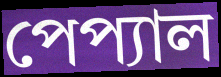
পেপ্যাল